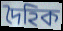
দৈহিক